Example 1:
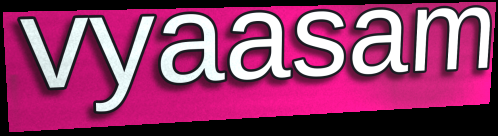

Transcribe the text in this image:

vyaasam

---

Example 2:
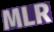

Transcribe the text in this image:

MLR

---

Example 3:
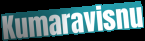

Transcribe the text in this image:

Kumaravisnu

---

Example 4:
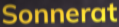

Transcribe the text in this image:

Sonnerat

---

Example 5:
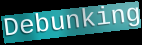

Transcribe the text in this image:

Debunking